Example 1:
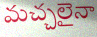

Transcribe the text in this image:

మచ్చలైనా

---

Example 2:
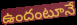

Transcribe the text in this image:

ఉందంటూనే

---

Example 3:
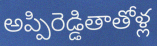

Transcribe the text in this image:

అప్పిరెడ్డితాతోళ్ల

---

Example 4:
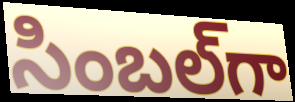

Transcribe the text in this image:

సింబల్‌గా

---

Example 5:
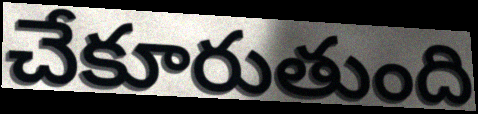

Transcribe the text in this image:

చేకూరుతుంది